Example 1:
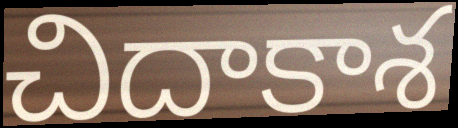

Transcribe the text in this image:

చిదాకాశ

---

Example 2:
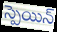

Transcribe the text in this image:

స్పెయిన్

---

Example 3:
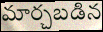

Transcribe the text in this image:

మార్చబడిన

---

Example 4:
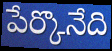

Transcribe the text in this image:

పేర్కొనేది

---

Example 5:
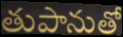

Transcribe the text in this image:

తుపానుతో